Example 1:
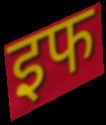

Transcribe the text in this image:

इफ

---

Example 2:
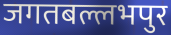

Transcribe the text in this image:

जगतबल्लभपुर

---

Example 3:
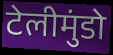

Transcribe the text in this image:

टेलीमुंडो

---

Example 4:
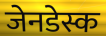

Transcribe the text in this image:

जेनडेस्क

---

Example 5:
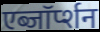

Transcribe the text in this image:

एब्जॉर्प्शन